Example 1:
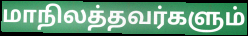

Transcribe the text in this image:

மாநிலத்தவர்களும்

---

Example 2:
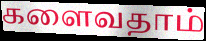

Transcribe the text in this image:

களைவதாம்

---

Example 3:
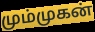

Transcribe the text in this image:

மும்முகன்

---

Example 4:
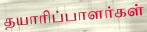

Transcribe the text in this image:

தயாரிப்பாளர்கள்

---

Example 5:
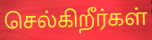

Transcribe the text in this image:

செல்கிறீர்கள்